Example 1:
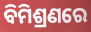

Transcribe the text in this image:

ବିମିଶ୍ରଣରେ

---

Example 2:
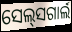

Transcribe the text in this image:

ସେଲ୍‍ସଗାର୍ଲ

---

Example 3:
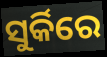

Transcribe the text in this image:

ସୁର୍କିରେ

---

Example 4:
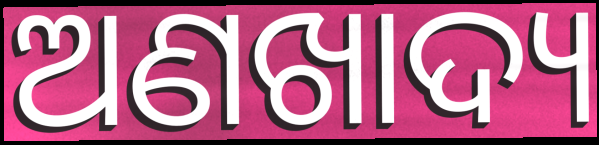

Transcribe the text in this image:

ଅଣଖାଦ୍ୟ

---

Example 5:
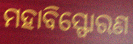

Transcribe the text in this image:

ମହାବିସ୍ଫୋରଣ